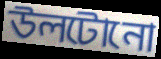
উলটোনো